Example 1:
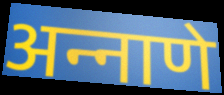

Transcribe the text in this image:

अन्नाणे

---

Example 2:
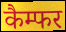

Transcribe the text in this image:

कैम्फर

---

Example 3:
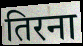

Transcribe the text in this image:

तिरना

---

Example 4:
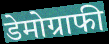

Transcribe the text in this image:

डेमोग्राफी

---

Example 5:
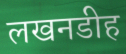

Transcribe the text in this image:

लखनडीह